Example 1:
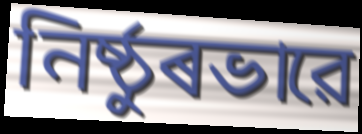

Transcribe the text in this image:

নিষ্ঠুৰভাৱে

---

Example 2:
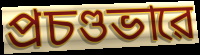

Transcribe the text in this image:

প্ৰচণ্ডভাৱে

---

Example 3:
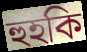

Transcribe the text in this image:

হুহকি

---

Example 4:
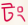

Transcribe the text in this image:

টং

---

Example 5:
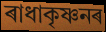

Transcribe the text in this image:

ৰাধাকৃষ্ণনৰ